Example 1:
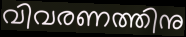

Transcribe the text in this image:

വിവരണത്തിനു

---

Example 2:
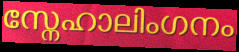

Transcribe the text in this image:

സ്നേഹാലിംഗനം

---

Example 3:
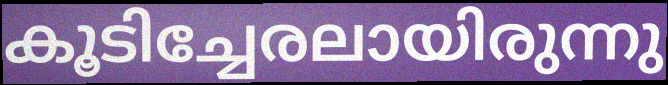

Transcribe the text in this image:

കൂടിച്ചേരലായിരുന്നു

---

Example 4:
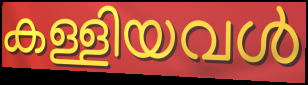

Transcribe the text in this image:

കള്ളിയവൾ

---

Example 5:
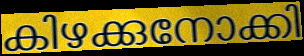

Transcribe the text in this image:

കിഴക്കുനോക്കി